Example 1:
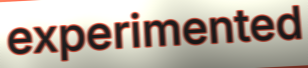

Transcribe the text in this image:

experimented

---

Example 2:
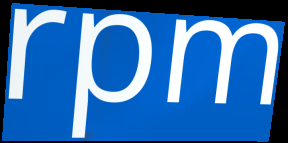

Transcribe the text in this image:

rpm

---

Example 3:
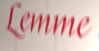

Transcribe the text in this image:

Lemme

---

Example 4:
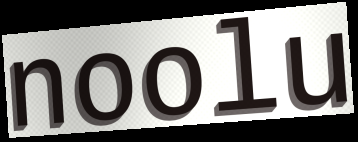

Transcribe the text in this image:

noolu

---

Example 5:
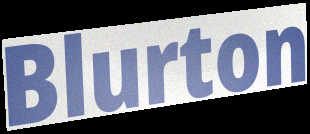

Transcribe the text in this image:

Blurton